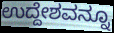
ಉದ್ದೇಶವನ್ನೂ